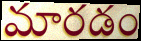
మారడం